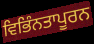
ਵਿਭਿੰਨਤਾਪੂਰਨ